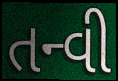
તન્વી